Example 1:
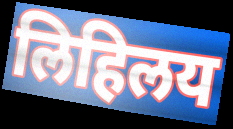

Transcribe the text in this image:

लिहिलय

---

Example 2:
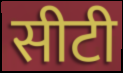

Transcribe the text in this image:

सीटी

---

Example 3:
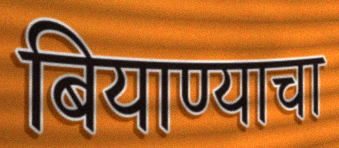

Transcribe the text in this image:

बियाण्याचा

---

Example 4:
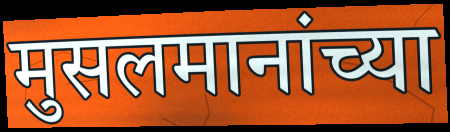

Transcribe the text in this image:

मुसलमानांच्या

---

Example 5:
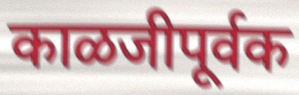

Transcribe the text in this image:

काळजीपूर्वक